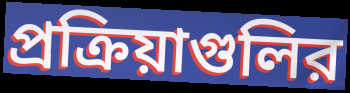
প্রক্রিয়াগুলির